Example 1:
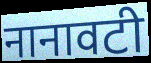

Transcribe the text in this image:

नानावटी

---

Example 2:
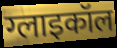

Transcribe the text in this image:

ग्लाइकॉल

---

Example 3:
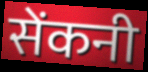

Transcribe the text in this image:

सेंकनी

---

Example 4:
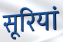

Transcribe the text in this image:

सूरियां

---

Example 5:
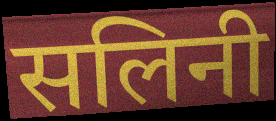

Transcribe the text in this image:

सलिनी